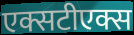
एक्सटीएक्स